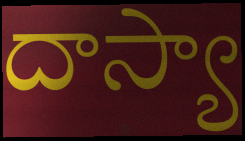
దాస్యా